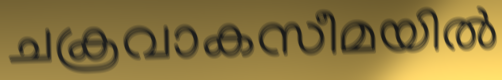
ചക്രവാകസീമയിൽ